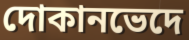
দোকানভেদে